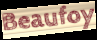
Beaufoy